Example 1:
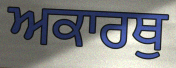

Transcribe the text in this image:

ਅਕਾਰਥੁ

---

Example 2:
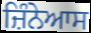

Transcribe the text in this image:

ਜ਼ਿੰਨੇਆਸ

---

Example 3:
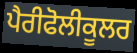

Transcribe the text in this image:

ਪੈਰੀਫੋਲੀਕੂਲਰ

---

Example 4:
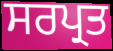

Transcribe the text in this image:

ਸਰਪ੍ਰਤ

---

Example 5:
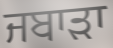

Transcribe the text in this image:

ਜਬਾੜਾ